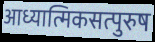
आध्यात्मिकसत्पुरुष